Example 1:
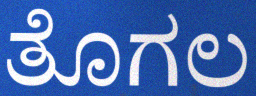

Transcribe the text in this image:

ತೊಗಲ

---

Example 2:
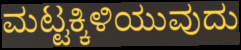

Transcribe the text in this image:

ಮಟ್ಟಕ್ಕಿಳಿಯುವುದು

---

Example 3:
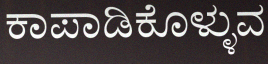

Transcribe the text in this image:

ಕಾಪಾಡಿಕೊಳ್ಳುವ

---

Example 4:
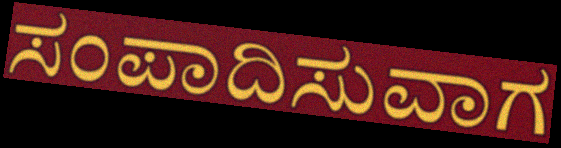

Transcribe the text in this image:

ಸಂಪಾದಿಸುವಾಗ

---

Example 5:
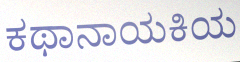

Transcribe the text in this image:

ಕಥಾನಾಯಕಿಯ